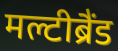
मल्टीब्रैंड